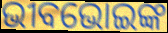
ଭୀବଭୋଇଙ୍କ